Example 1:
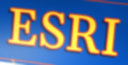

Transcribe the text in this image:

ESRI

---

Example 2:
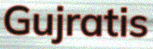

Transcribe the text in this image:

Gujratis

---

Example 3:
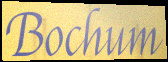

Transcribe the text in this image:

Bochum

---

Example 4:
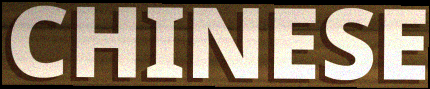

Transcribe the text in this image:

CHINESE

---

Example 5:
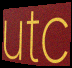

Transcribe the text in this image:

utc